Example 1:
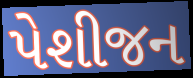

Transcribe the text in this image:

પેશીજન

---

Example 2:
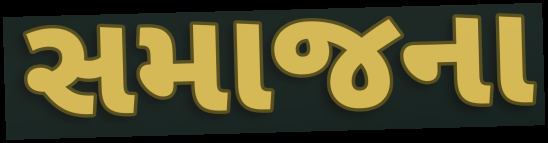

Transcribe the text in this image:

સમાજના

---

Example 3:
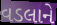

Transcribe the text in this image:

વડલાને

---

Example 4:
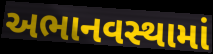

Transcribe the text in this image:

અભાનવસ્થામાં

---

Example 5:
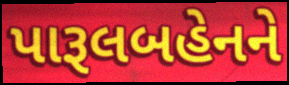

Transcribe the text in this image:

પારૂલબહેનને